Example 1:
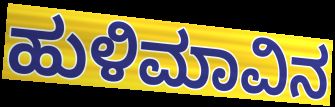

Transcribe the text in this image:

ಹುಳಿಮಾವಿನ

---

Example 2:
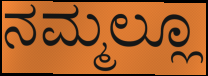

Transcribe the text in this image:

ನಮ್ಮಲ್ಲೂ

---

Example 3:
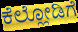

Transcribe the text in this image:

ಕೆಲ್ಲೋಡಿಗೆ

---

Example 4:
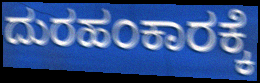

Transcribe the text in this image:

ದುರಹಂಕಾರಕ್ಕೆ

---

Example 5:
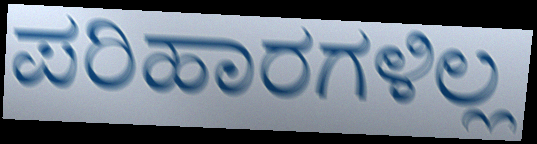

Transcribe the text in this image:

ಪರಿಹಾರಗಳಿಲ್ಲ